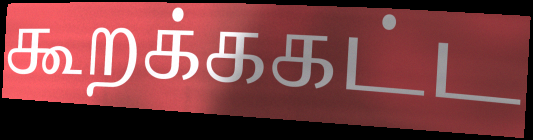
கூறக்ககட்ட